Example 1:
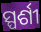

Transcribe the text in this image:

ସ୍ପର୍ଶୀ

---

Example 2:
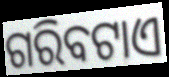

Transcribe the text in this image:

ଗରିବଟାଏ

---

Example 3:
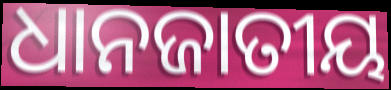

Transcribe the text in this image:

ଧାନଜାତୀୟ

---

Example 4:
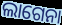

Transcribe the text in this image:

ଲାଗେନା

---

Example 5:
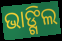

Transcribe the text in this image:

ଭାଙ୍ଗିଲ